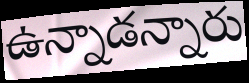
ఉన్నాడన్నారు